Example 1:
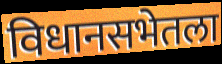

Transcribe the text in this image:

विधानसभेतला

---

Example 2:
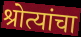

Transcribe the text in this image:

श्रोत्यांचा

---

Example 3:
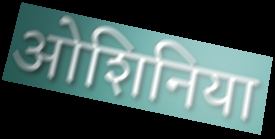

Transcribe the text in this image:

ओशिनिया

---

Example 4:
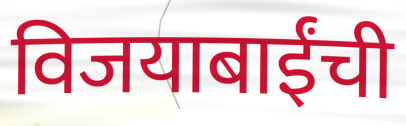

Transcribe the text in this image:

विजयाबाईंची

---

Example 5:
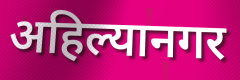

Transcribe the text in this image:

अहिल्यानगर